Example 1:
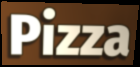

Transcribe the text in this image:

Pizza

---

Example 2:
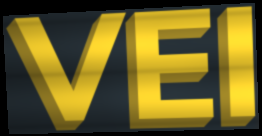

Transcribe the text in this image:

VEI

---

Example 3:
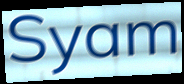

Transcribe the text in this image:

Syam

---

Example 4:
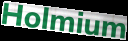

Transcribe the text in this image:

Holmium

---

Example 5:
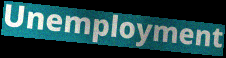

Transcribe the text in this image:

Unemployment